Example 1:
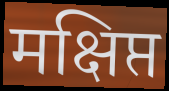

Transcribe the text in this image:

मक्षिप्त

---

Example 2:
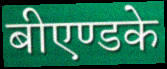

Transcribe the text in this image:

बीएण्डके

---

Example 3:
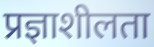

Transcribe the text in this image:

प्रज्ञाशीलता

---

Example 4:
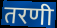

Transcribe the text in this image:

तरणी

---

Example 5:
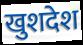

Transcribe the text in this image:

खुशदेश